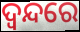
ଦ୍ଵନ୍ଦରେ